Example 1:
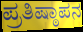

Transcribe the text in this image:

ಪ್ರತಿಷ್ಠಾಪನ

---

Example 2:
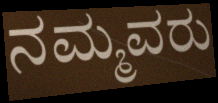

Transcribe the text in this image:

ನಮ್ಮವರು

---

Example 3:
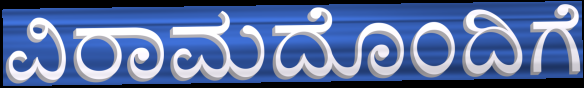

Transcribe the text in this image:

ವಿರಾಮದೊಂದಿಗೆ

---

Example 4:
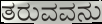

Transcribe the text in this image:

ತರುವವನು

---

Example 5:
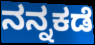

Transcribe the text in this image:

ನನ್ನಕಡೆ